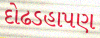
દોઢડહાપણ